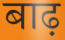
बाढ़